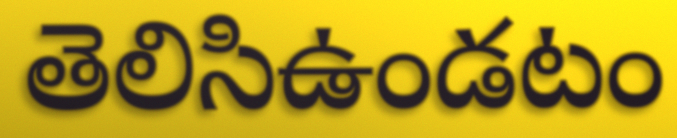
తెలిసిఉండటం